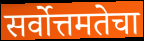
सर्वोत्तमतेचा